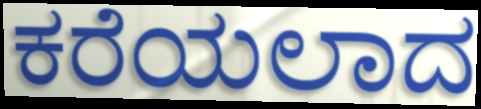
ಕರೆಯಲಾದ